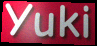
Yuki